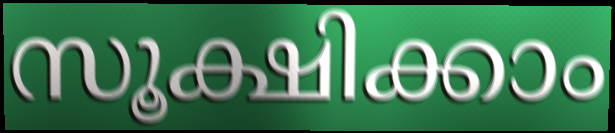
സൂക്ഷിക്കാം